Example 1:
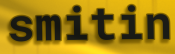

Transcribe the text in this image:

smitin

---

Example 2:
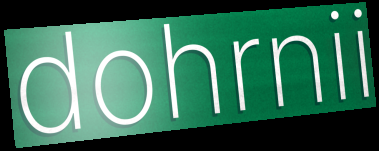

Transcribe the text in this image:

dohrnii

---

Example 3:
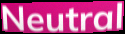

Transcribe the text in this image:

Neutral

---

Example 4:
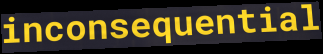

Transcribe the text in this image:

inconsequential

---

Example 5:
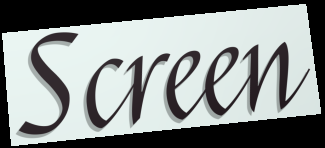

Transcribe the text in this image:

Screen